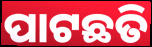
ପାଟଛତି